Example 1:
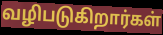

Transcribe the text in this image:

வழிபடுகிறார்கள்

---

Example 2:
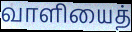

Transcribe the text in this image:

வாளியைத்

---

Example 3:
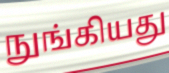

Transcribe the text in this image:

நுங்கியது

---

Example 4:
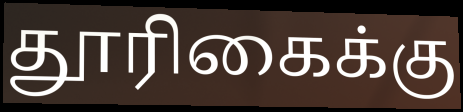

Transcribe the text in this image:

தூரிகைக்கு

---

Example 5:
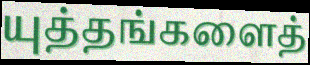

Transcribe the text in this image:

யுத்தங்களைத்